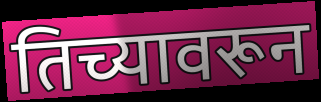
तिच्यावरून